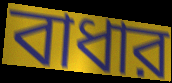
বাধার